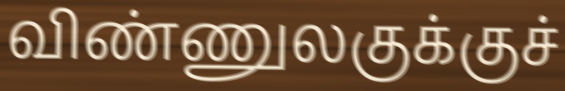
விண்ணுலகுக்குச்